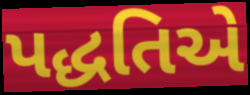
પદ્ધતિએ